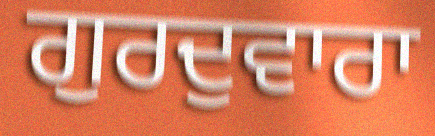
ਗੁਰਦੁਵਾਰਾ